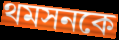
থমসনকে